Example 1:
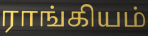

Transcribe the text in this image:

ராங்கியம்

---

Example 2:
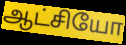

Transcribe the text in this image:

ஆட்சியோ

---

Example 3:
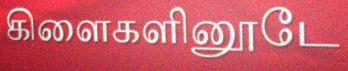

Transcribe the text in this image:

கிளைகளினூடே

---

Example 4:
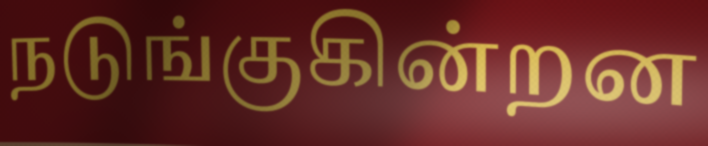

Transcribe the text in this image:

நடுங்குகின்றன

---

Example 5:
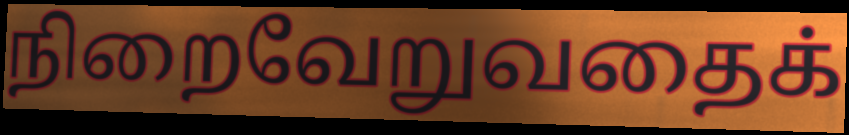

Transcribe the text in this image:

நிறைவேறுவதைக்